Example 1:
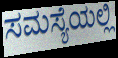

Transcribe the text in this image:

ಸಮಸ್ಯೆಯಲ್ಲಿ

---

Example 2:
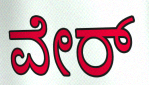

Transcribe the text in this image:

ವೇರ್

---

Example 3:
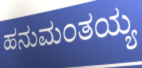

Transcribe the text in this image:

ಹನುಮಂತಯ್ಯ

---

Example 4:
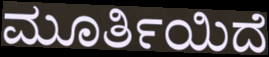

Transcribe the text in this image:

ಮೂರ್ತಿಯಿದೆ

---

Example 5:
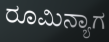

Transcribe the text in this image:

ರೂಮಿನ್ಯಾಗ